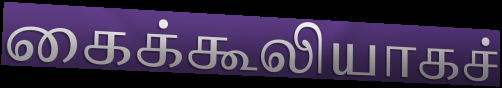
கைக்கூலியாகச்